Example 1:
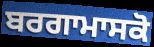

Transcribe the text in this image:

ਬਰਗਾਮਾਸਕੋ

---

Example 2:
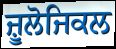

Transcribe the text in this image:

ਜ਼ੂਲੋਜਿਕਲ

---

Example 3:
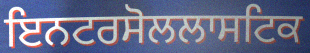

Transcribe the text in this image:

ਇਨਟਰਸੋਲਲਾਸਟਿਕ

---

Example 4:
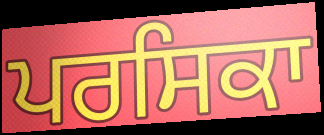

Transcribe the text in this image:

ਪਰਸਿਕਾ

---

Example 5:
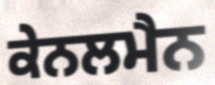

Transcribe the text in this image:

ਕੇਨਲਮੈਨ